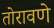
तोरावणे